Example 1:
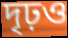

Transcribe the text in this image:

দৃঢ়ও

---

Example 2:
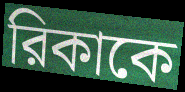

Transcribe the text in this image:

রিকাকে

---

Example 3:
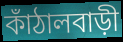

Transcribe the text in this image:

কাঁঠালবাড়ী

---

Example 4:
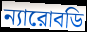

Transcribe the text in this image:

ন্যারোবডি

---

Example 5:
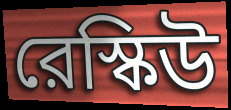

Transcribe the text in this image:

রেস্কিউ